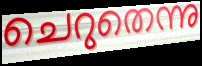
ചെറുതെന്നു